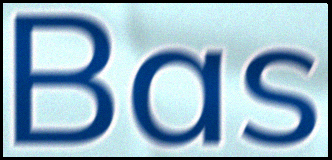
Bas